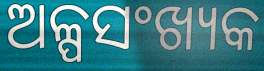
ଅଳ୍ପସଂଖ୍ୟକ